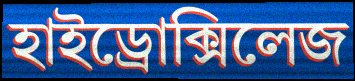
হাইড্রোক্সিলেজ